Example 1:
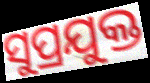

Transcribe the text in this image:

ସୁପ୍ରଯୁକ୍ତ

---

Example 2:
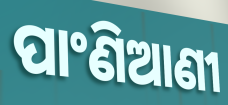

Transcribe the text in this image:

ପାଂଣିଆଣୀ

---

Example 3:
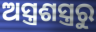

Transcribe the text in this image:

ଅସ୍ତ୍ରଶସ୍ତ୍ରରୁ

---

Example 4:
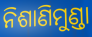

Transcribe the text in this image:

ନିଶାଣିମୁଣ୍ଡା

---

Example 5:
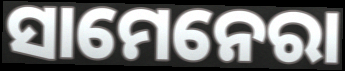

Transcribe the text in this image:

ସାମେନେରା